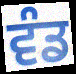
ਵੰਡ